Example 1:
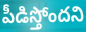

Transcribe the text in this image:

పీడిస్తోందని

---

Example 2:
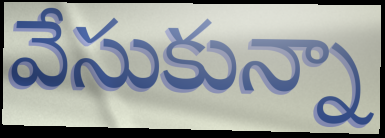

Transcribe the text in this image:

వేసుకున్నా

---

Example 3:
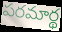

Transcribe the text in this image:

పరమార్థ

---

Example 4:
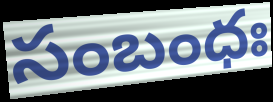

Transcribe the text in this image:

సంబంధః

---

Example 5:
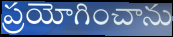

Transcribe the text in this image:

ప్రయోగించాను